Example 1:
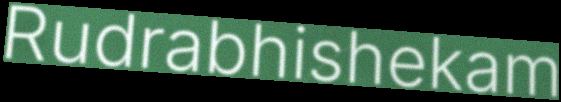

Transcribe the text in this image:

Rudrabhishekam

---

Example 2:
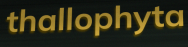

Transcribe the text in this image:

thallophyta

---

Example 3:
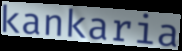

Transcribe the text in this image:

kankaria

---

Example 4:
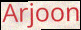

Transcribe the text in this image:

Arjoon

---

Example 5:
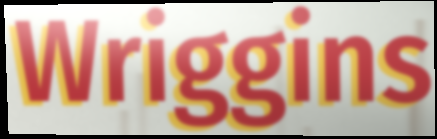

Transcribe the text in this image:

Wriggins